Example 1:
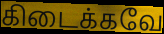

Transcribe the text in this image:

கிடைக்கவே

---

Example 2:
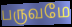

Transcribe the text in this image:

பருவமே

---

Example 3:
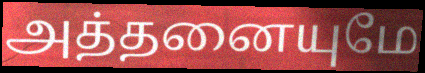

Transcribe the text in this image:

அத்தனையுமே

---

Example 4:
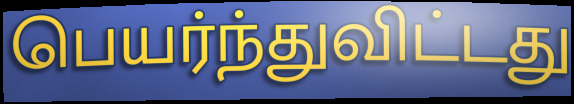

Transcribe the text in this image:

பெயர்ந்துவிட்டது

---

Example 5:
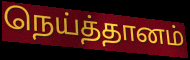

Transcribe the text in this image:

நெய்த்தானம்